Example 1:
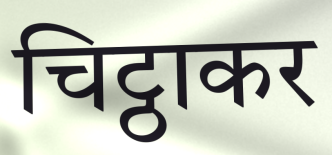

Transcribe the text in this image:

चिट्ठाकर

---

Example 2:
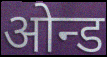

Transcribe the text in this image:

ओन्ड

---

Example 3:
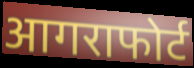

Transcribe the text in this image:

आगराफोर्ट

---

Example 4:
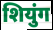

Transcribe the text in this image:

शियुंग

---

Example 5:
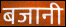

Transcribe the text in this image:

बजानी